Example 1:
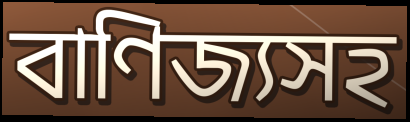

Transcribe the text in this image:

বাণিজ্যসহ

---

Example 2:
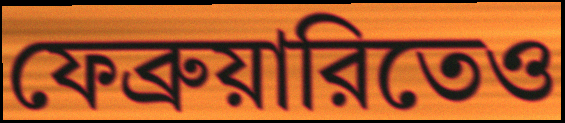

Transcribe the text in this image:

ফেব্রুয়ারিতেও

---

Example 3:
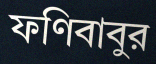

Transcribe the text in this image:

ফণিবাবুর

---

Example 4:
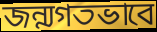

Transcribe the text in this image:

জন্মগতভাবে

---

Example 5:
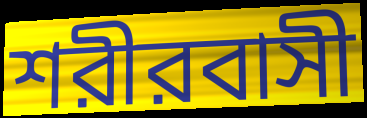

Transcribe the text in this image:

শরীরবাসী